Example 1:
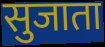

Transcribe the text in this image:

सुजाता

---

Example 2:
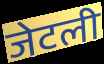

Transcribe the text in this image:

जेटली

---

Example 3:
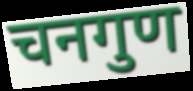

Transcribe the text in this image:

चनगुण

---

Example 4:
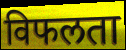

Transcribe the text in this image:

विफलता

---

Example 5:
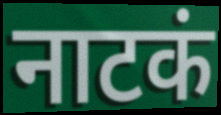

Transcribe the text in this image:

नाटकं